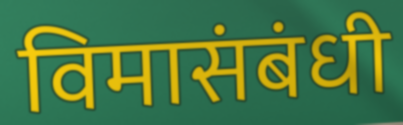
विमासंबंधी